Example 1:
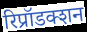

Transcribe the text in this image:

रिप्रॉडक्शन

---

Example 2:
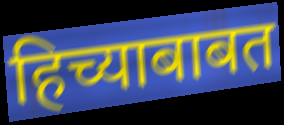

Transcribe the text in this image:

हिच्याबाबत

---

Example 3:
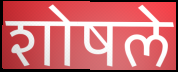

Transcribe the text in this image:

शोषले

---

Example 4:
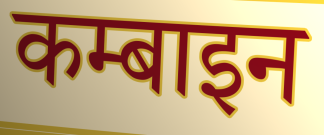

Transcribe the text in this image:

कम्बाइन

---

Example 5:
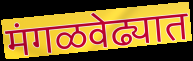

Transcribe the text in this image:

मंगळवेढ्यात